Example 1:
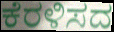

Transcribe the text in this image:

ಕೆರಳಿಸದ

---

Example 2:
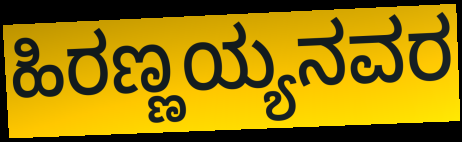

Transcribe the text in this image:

ಹಿರಣ್ಣಯ್ಯನವರ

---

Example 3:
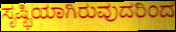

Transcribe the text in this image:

ಸೃಷ್ಟಿಯಾಗಿರುವುದರಿಂದ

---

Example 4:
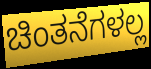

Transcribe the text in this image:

ಚಿಂತನೆಗಳಲ್ಲ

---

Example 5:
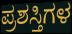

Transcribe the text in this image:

ಪ್ರಶಸ್ತಿಗಳ